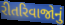
રીતરિવાજોનું